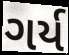
ગર્ય